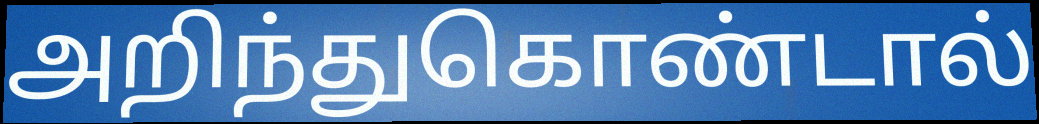
அறிந்துகொண்டால்